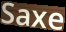
Saxe